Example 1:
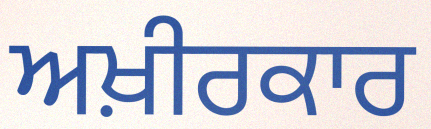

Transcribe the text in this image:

ਅਖ਼ੀਰਕਾਰ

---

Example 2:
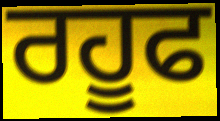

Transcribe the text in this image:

ਰਹੂਫ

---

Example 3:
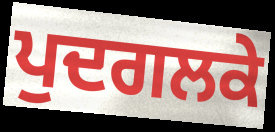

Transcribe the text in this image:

ਪੁਦਗਲਕੇ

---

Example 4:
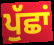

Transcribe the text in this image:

ਪੁੱਛਾਂ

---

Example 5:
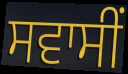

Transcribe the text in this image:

ਸਵਾਸੀਂ